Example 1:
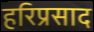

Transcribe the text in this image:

हरिप्रसाद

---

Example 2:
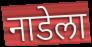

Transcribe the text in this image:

नाडेला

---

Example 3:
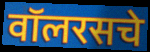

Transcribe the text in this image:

वॉलरसचे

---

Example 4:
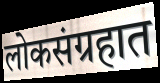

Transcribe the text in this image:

लोकसंग्रहात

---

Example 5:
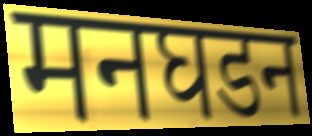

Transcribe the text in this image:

मनघडन